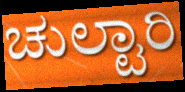
ಚುಲ್ಟಾರಿ